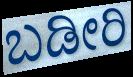
ಬಡೀರಿ